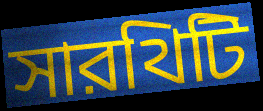
সারথিটি